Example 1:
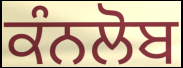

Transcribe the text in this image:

ਕੰਨਲੋਬ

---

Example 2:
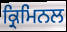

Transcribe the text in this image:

ਕ੍ਰਿਮਿਨਲ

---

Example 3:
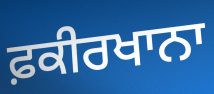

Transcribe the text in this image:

ਫ਼ਕੀਰਖਾਨਾ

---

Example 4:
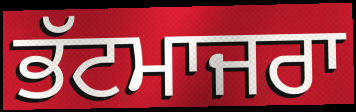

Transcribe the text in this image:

ਭੱਟਮਾਜਰਾ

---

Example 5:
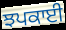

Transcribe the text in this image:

ਝਪਕਾਈ